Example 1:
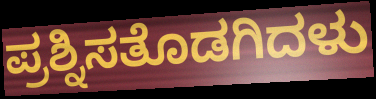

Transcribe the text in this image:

ಪ್ರಶ್ನಿಸತೊಡಗಿದಳು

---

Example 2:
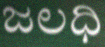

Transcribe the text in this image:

ಜಲಧಿ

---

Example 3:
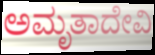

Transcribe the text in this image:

ಅಮೃತಾದೇವಿ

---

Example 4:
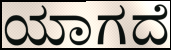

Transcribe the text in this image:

ಯಾಗದೆ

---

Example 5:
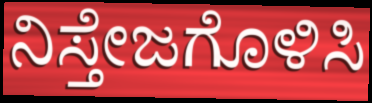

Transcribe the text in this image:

ನಿಸ್ತೇಜಗೊಳಿಸಿ